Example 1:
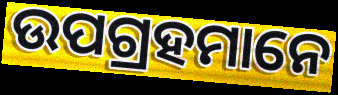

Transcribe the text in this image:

ଉପଗ୍ରହମାନେ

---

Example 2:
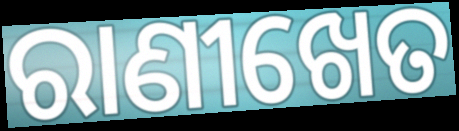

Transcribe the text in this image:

ରାଣୀଖେତ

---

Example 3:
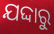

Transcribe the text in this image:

ଯଦ୍ଦାରୁ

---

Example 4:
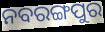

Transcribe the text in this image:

ନବରଙ୍ଗପୁର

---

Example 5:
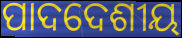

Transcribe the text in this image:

ପାଦଦେଶୀୟ